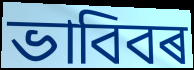
ভাবিবৰ